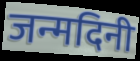
जन्मदिनी